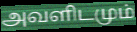
அவளிடமும்